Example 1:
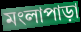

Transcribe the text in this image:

মংলাপাড়া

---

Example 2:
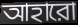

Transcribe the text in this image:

আহারো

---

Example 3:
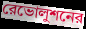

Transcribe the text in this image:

রেভোলুশনের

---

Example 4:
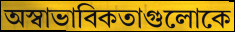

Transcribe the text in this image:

অস্বাভাবিকতাগুলোকে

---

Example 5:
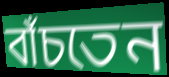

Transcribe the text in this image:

বাঁচতেন